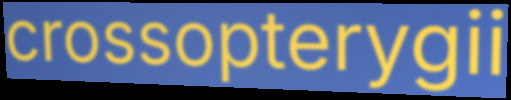
crossopterygii